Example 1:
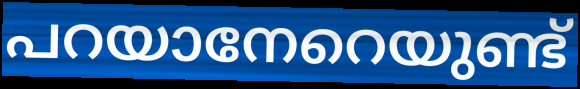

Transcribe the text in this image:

പറയാനേറെയുണ്ട്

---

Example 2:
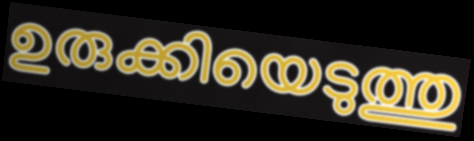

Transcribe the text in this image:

ഉരുക്കിയെടുത്തു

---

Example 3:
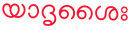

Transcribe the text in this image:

യാദൃശൈഃ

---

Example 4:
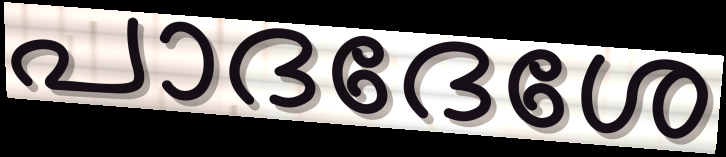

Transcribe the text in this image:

പാദദേശേ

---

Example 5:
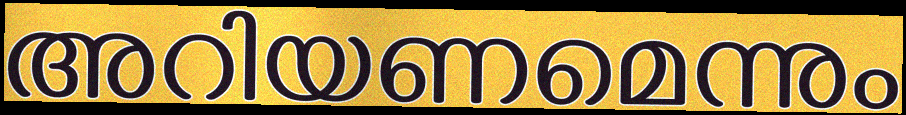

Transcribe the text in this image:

അറിയണമെന്നും